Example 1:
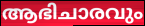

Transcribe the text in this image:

ആഭിചാരവും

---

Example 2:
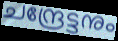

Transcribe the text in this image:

ചന്ദ്രേട്ടനും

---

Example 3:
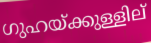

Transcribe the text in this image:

ഗുഹയ്ക്കുള്ളില്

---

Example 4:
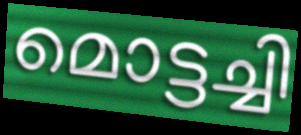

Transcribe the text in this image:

മൊട്ടച്ചി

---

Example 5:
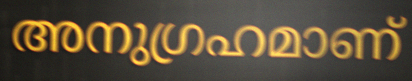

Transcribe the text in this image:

അനുഗ്രഹമാണ്